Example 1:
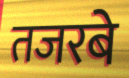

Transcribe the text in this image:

तजरबे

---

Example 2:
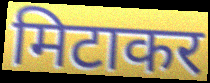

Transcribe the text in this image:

मिटाकर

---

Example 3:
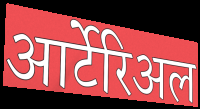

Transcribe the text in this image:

आर्टेरिअल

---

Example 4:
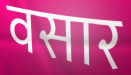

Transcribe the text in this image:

वसार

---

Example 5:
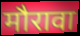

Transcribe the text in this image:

मौरावा